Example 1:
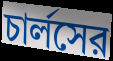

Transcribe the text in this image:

চার্লসের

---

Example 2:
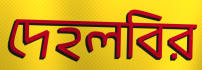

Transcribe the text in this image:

দেহলবির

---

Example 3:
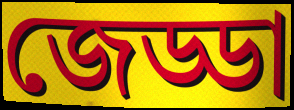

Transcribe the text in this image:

জেড্ডা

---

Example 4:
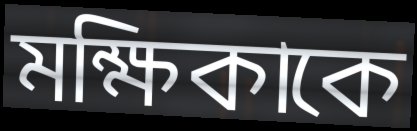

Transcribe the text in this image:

মক্ষিকাকে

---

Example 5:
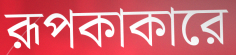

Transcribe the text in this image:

রূপকাকারে